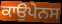
ਕਾਉਪੇਨਸ